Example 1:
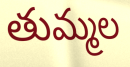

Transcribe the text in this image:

తుమ్మల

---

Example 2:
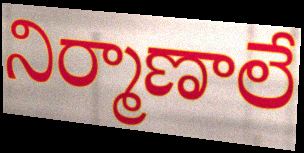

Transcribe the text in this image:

నిర్మాణాలే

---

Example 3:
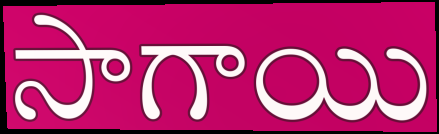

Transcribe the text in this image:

సాగాయి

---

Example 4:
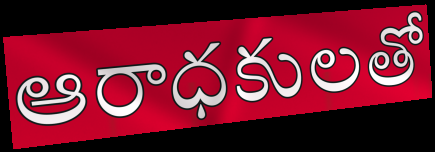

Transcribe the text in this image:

ఆరాధకులతో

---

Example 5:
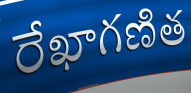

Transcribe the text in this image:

రేఖాగణిత